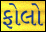
ફોલો